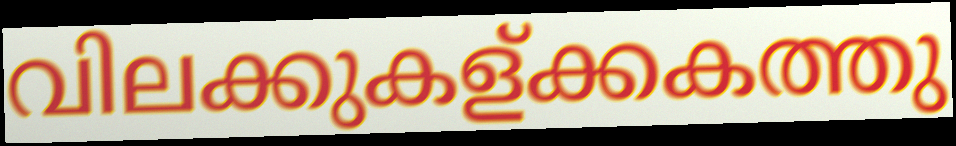
വിലക്കുകള്ക്കകത്തു